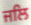
ਜਲਿ